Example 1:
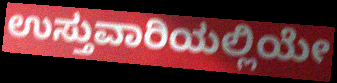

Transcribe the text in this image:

ಉಸ್ತುವಾರಿಯಲ್ಲಿಯೇ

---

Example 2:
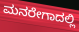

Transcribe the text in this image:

ಮನರೇಗಾದಲ್ಲಿ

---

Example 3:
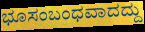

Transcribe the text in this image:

ಭೂಸಂಬಂಧವಾದದ್ದು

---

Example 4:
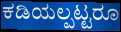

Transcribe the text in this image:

ಕಡಿಯಲ್ಪಟ್ಟರೂ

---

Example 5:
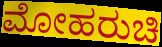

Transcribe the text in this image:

ಮೋಹರುಚಿ